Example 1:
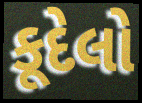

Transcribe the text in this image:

કૂદેલો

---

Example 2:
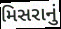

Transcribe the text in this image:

મિસરાનું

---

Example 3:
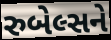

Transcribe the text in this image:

રુબેલ્સને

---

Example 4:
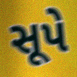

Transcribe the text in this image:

સૂપે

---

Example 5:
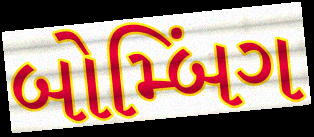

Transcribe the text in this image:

બોમ્બિંગ